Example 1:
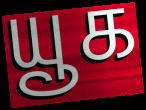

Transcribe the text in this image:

யூக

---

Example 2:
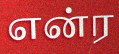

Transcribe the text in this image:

என்ர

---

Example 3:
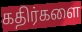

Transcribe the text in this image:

கதிர்களை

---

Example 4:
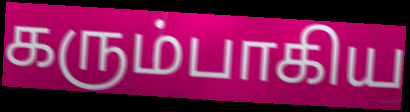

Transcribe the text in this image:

கரும்பாகிய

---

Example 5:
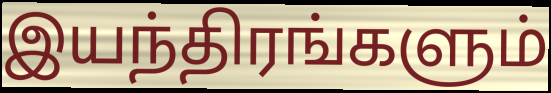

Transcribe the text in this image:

இயந்திரங்களும்